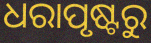
ଧରାପୃଷ୍ଟରୁ